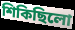
শিকিছিলো